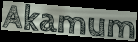
Akamum